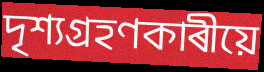
দৃশ্যগ্ৰহণকাৰীয়ে